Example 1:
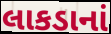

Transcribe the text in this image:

લાકડાનાં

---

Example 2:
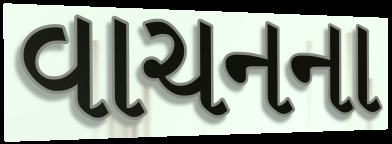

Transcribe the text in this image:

વાચનના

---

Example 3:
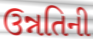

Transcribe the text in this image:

ઉન્નતિની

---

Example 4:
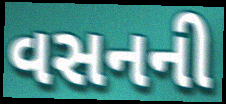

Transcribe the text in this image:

વસનની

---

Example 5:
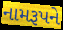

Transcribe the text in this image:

નામરૂપને